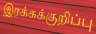
இரக்கக்குறிப்பு